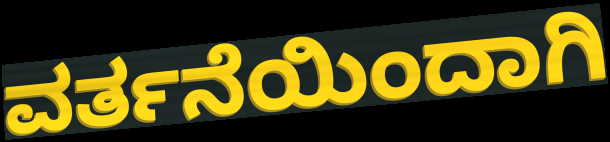
ವರ್ತನೆಯಿಂದಾಗಿ